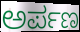
ಅರ್ಪಣ